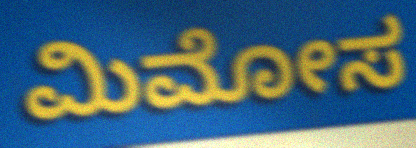
ಮಿಮೋಸ